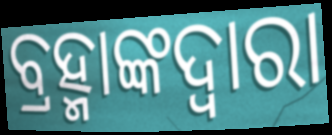
ବ୍ରହ୍ମାଙ୍କଦ୍ୱାରା